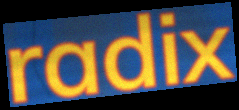
radix